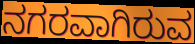
ನಗರವಾಗಿರುವ